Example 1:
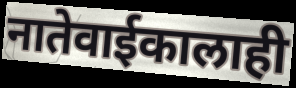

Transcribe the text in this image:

नातेवाईकालाही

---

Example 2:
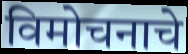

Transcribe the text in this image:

विमोचनाचे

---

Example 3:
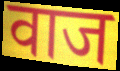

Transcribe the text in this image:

वाज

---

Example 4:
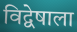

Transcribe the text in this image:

विद्वेषाला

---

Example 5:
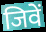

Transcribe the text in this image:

जिवें